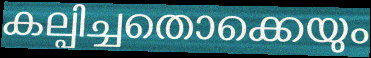
കല്പിച്ചതൊക്കെയും